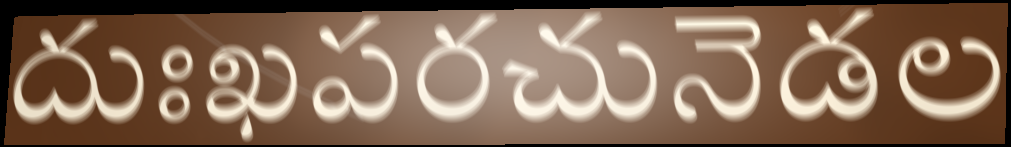
దుఃఖపరచునెడల